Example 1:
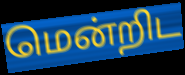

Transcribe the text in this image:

மென்றிட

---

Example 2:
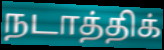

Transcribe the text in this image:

நடாத்திக்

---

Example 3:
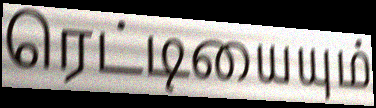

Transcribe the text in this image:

ரெட்டியையும்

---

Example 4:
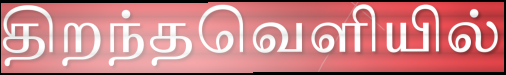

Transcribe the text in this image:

திறந்தவெளியில்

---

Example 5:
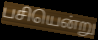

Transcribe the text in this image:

பசியென்று